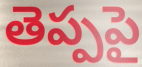
తెప్పపై